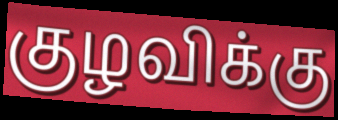
குழவிக்கு